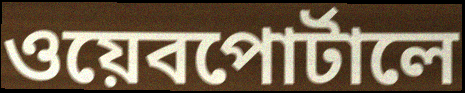
ওয়েবপোর্টালে